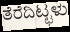
ತೆರೆದಿಟ್ಟಳು